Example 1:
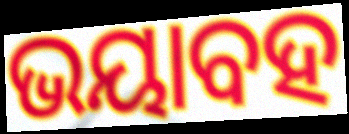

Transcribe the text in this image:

ଭୟାବହ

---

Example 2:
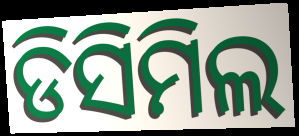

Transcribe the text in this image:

ଡିସିମିଲ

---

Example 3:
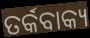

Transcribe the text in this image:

ତର୍କବାକ୍ୟ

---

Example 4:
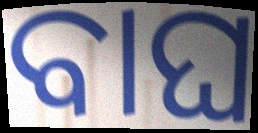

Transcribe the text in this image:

ବାଘ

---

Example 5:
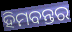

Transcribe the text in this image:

ହିମବନ୍ତର